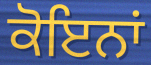
ਕੋਇਨਾਂ